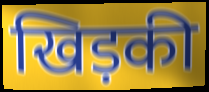
खिड़की